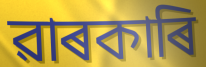
ৱাৰকাৰি